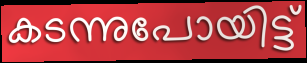
കടന്നുപോയിട്ട്